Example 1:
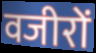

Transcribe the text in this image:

वजीरों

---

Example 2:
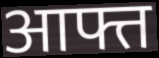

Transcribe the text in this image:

आफ्त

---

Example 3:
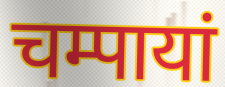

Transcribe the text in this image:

चम्पायां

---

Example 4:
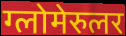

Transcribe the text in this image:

ग्लोमेरुलर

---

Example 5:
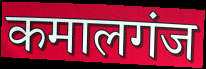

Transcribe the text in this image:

कमालगंज